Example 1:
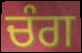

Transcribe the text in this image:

ਚੰਗ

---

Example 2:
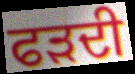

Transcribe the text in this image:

ਫੜਦੀ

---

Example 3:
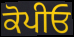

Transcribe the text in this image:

ਕੋਪੀਓ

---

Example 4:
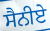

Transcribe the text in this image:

ਸੈਨੀਏ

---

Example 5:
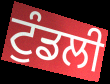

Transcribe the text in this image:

ਟੁੰਡਲੀ